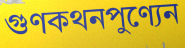
গুণকথনপুণ্যেন